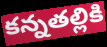
కన్నతల్లికి